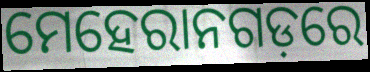
ମେହେରାନଗଡ଼ରେ